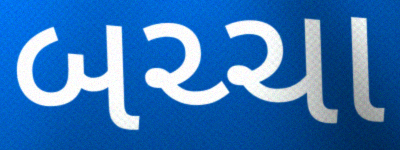
બચ્ચા